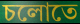
চলোতে